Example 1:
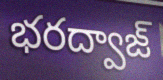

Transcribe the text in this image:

భరద్వాజ్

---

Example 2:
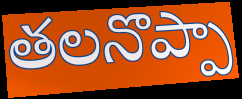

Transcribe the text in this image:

తలనొప్పా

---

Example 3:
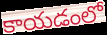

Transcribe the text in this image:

కాయడంలో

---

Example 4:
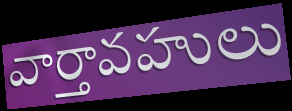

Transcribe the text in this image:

వార్తావహులు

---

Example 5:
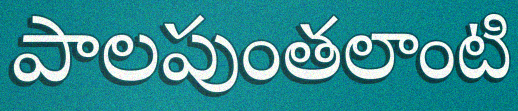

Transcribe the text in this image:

పాలపుంతలాంటి